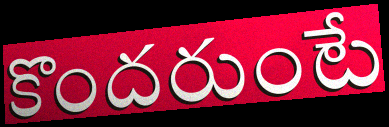
కొందరుంటే